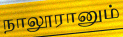
நாலூரானும்